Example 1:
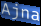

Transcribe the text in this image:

Ajna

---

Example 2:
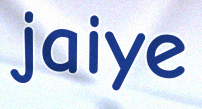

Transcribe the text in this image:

jaiye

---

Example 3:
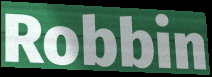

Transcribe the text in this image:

Robbin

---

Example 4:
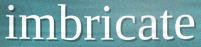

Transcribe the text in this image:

imbricate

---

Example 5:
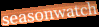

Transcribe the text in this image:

seasonwatch